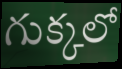
గుక్కలో